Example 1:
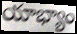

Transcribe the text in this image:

యాభ్యాం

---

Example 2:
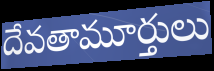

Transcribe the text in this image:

దేవతామూర్తులు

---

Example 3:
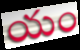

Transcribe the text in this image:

యం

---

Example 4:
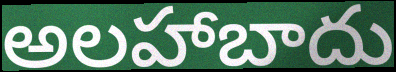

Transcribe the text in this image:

అలహాబాదు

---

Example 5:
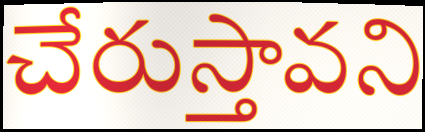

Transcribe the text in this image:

చేరుస్తావని